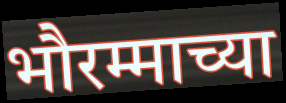
भौरम्माच्या